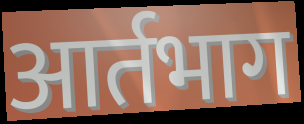
आर्तभाग